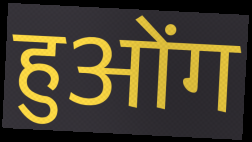
हुओंग